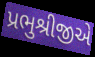
પ્રભુશ્રીજીએ